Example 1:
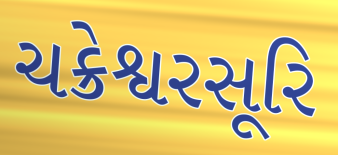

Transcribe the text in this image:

ચક્રેશ્વરસૂરિ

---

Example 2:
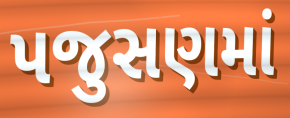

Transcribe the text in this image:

પજુસણમાં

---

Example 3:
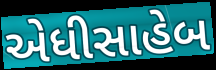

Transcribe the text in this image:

એધીસાહેબ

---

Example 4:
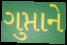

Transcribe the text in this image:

ગુપ્તાને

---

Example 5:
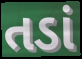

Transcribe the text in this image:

તડાં